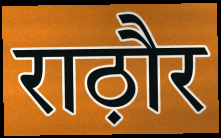
राठ़ौर